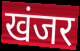
खंजर